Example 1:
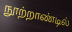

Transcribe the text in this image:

நூற்றாண்டில்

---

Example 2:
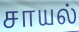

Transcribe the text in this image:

சாயல்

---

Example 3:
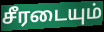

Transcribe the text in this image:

சீரடையும்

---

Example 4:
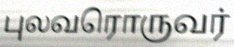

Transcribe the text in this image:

புலவரொருவர்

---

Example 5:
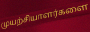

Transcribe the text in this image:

முயற்சியாளர்களை